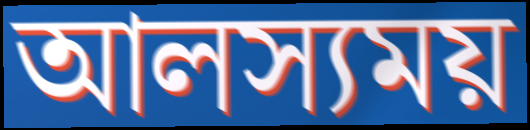
আলস্যময়